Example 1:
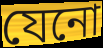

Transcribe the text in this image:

যেনো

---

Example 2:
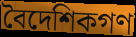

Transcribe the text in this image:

বৈদেশিকগণ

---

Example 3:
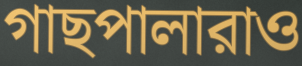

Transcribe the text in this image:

গাছপালারাও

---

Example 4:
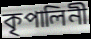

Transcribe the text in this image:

কৃপালিনী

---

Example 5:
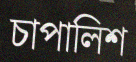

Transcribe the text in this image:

চাপালিশ